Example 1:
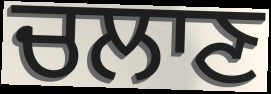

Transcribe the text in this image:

ਚਲਾਣ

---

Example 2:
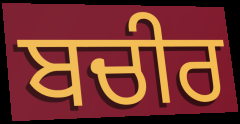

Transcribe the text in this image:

ਬਚੀਰ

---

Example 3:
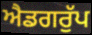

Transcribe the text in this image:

ਐਡਗਰੁੱਪ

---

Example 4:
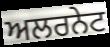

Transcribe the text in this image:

ਅਲਰਨੇਟ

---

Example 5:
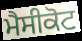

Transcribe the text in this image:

ਮੈਸੀਕੋਟ